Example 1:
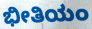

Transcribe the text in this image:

ಭೀತಿಯಂ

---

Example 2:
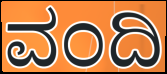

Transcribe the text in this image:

ವಂದಿ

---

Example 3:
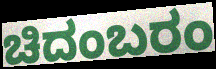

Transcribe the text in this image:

ಚಿದಂಬರಂ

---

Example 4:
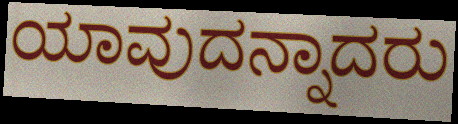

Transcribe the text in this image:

ಯಾವುದನ್ನಾದರು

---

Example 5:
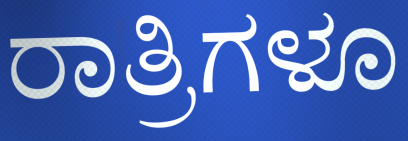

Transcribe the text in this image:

ರಾತ್ರಿಗಳೂ